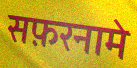
सफ़रनामे